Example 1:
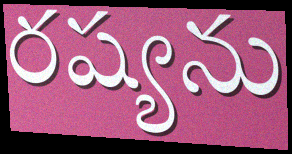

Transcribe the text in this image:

రష్యను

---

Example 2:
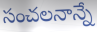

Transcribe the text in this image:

సంచలనాన్నే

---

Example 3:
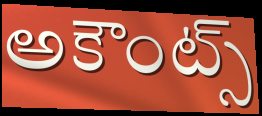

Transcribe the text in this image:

అకౌంట్స్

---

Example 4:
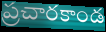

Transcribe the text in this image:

ప్రచారకాండ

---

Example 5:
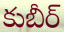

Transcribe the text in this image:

కుబీర్